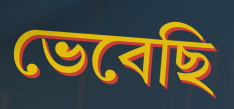
ভেবেছি